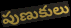
పుణుకులు